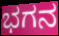
ಭಗನ